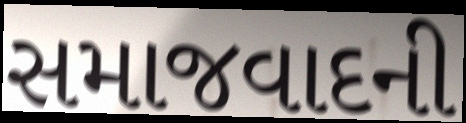
સમાજવાદની